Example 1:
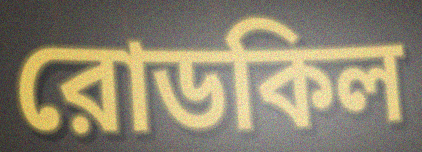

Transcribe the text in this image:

রোডকিল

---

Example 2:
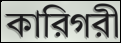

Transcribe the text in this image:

কারিগরী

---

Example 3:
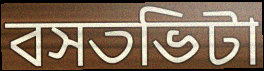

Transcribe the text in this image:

বসতভিটা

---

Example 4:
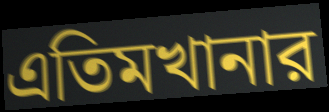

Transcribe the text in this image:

এতিমখানার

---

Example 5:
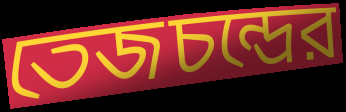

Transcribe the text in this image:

তেজচন্দ্রের